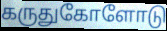
கருதுகோளோடு